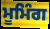
ਮੂਮਿੰਗ